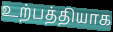
உற்பத்தியாக